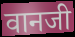
वानजी